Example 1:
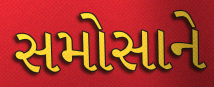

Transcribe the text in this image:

સમોસાને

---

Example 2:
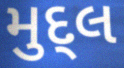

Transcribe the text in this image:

મુદ્લ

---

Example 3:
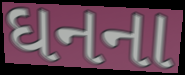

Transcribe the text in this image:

ઘનના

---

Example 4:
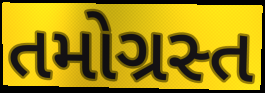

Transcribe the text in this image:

તમોગ્રસ્ત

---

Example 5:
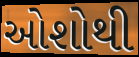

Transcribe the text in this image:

ઓશોથી